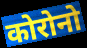
कोरोनो